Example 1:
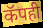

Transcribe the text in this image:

कॅपही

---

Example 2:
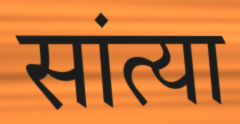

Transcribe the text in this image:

सांत्या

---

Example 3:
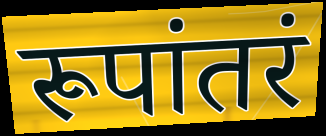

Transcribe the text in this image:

रूपांतरं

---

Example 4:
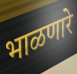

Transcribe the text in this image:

भाळणारे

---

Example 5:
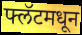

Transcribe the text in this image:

फ्लॅटमधून